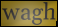
wagh